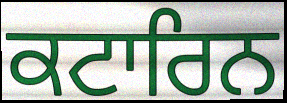
ਕਟਾਰਿਨ